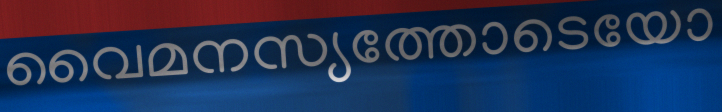
വൈമനസ്യത്തോടെയോ